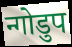
न्गोडुप